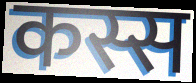
कस्स